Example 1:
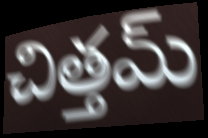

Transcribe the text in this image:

చిత్తమ్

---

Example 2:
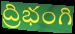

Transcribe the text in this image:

ద్రిభంగి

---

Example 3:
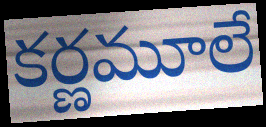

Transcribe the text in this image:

కర్ణమూలే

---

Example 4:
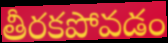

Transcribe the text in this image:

తీరకపోవడం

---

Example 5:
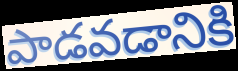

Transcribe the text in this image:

పాడవడానికి